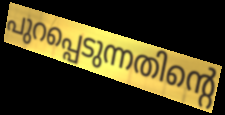
പുറപ്പെടുന്നതിന്റെ